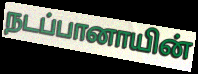
நடப்பானாயின்